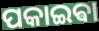
ପକାଇଵା